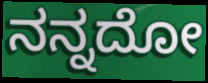
ನನ್ನದೋ